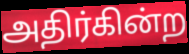
அதிர்கின்ற